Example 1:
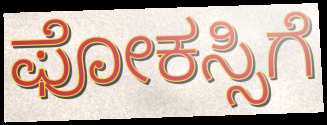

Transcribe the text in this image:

ಫೋಕಸ್ಸಿಗೆ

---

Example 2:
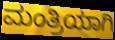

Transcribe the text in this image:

ಮಂತ್ರಿಯಾಗಿ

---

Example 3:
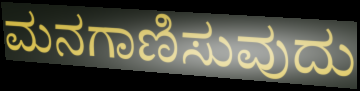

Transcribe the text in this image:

ಮನಗಾಣಿಸುವುದು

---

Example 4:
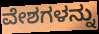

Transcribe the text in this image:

ವೇಶಗಳನ್ನು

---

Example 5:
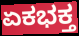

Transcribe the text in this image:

ಏಕಭಕ್ತ